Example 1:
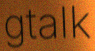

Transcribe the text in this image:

gtalk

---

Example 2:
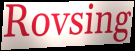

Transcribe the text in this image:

Rovsing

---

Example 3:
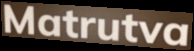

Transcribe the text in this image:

Matrutva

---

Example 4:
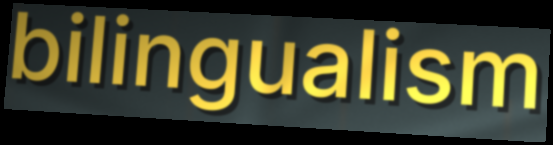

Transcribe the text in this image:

bilingualism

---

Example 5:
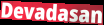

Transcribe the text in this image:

Devadasan